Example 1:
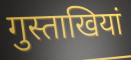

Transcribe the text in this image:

गुस्ताखियां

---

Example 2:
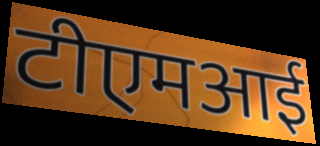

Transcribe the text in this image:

टीएमआई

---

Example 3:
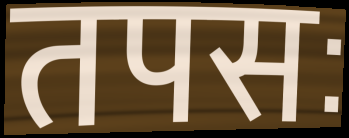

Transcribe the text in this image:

तपसः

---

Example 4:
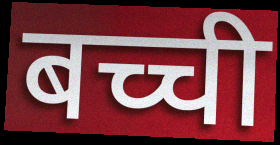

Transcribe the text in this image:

बच्ची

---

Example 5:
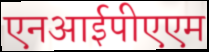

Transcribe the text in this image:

एनआईपीएएम